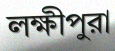
লক্ষীপুরা